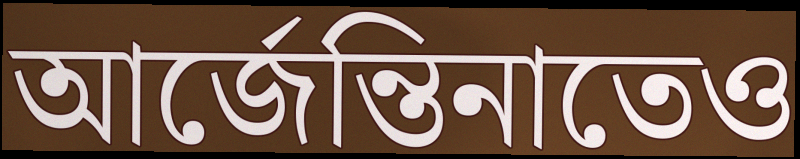
আর্জেন্তিনাতেও